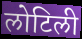
लोटिली